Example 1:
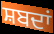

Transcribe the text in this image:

ਸ਼ਬਦਾਂ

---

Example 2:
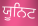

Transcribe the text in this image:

ਯੂਨਿਟ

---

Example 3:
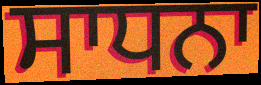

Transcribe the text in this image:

ਸਾਧਨਾ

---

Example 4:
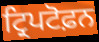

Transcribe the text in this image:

ਟ੍ਰਿਪਟੋਫ਼ਨ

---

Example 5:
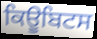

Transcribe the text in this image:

ਕਿਊਬਿਟਸ